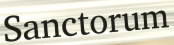
Sanctorum